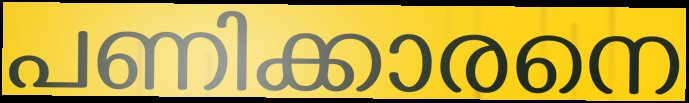
പണിക്കാരനെ